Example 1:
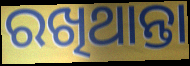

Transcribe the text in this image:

ରଖିଥାନ୍ତା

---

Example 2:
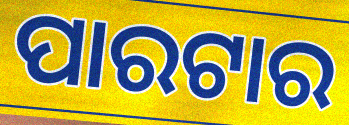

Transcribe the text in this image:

ପାରଟାର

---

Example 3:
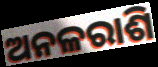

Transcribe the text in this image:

ଅନଳରାଶି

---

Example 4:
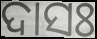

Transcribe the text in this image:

ଦାସଃ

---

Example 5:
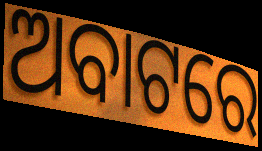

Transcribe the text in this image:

ଅବାଟରେ